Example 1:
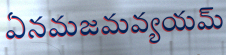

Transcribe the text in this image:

ఏనమజమవ్యయమ్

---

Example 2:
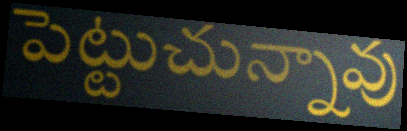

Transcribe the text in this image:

పెట్టుచున్నావు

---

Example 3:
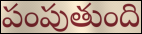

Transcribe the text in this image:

పంపుతుంది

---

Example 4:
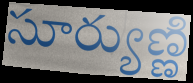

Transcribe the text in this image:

సూర్యుణ్ణి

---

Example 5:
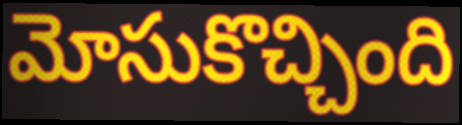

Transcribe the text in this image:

మోసుకొచ్చింది